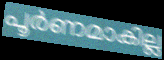
പൂർണമാകില്ല